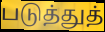
படுத்துத்